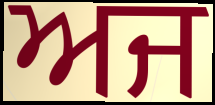
ਅਜ